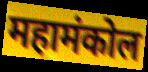
महामंकोल